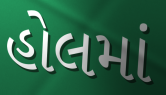
હોલમાં